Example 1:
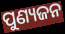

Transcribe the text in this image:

ପୁଣ୍ୟଜନ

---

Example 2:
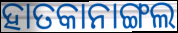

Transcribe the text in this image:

ହାତକାନାଙ୍ଗଲ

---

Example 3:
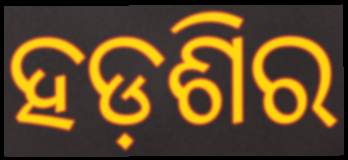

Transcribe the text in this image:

ହଡ଼ଶିର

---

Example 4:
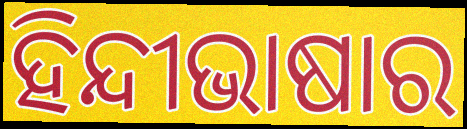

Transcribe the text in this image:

ହିନ୍ଦୀଭାଷାର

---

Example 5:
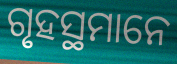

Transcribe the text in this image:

ଗୃହସ୍ଥମାନେ